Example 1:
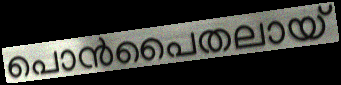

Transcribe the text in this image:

പൊൻപൈതലായ്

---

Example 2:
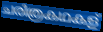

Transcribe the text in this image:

ചരിത്രകഥകള്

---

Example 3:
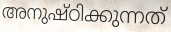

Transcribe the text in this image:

അനുഷ്ഠിക്കുന്നത്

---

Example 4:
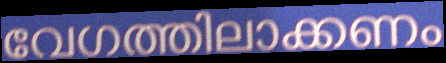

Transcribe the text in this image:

വേഗത്തിലാക്കണം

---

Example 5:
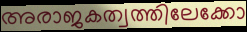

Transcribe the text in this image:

അരാജകത്വത്തിലേക്കോ